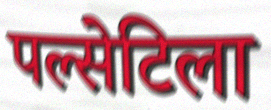
पल्सेटिला